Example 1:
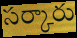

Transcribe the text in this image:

సర్కారు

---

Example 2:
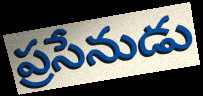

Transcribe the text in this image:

ప్రసేనుడు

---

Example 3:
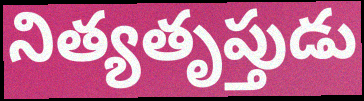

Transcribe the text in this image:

నిత్యతృప్తుడు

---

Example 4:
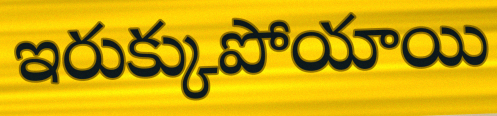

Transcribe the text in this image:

ఇరుక్కుపోయాయి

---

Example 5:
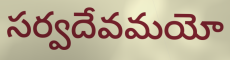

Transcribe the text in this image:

సర్వదేవమయో